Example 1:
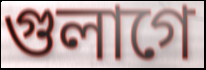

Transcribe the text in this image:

গুলাগে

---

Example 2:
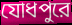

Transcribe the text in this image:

যোধপুরে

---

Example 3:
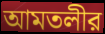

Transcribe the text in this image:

আমতলীর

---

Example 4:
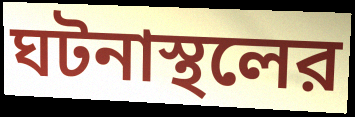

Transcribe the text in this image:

ঘটনাস্থলের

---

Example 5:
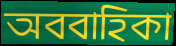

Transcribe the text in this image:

অববাহিকা